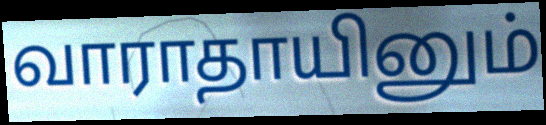
வாராதாயினும்